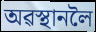
অৱস্থানলৈ